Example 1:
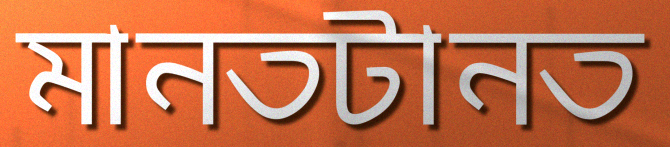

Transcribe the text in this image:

মানতটানত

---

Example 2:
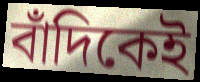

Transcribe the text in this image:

বাঁদিকেই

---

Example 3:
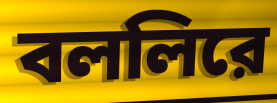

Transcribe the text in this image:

বললিরে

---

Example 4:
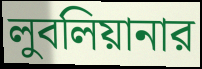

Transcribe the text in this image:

লুবলিয়ানার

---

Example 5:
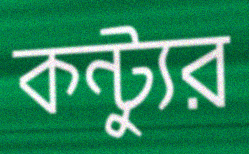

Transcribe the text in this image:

কন্ট্যুর